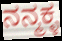
ನನ್ಮಕ್ಳ